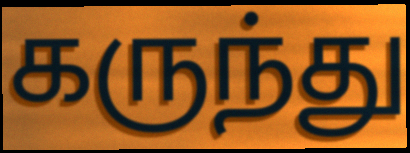
கருந்து